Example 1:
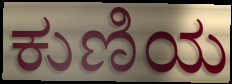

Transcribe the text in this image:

ಕುಣಿಯ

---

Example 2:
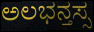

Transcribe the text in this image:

ಅಲಭನ್ತಸ್ಸ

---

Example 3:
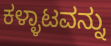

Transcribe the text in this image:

ಕಳ್ಳಾಟವನ್ನು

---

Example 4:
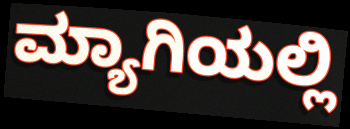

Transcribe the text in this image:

ಮ್ಯಾಗಿಯಲ್ಲಿ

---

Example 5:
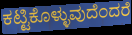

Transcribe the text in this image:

ಕಟ್ಟಿಕೊಳ್ಳುವುದೆಂದರೆ